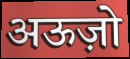
अऊज़ो